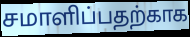
சமாளிப்பதற்காக